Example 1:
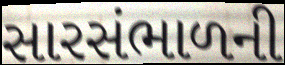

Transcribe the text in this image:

સારસંભાળની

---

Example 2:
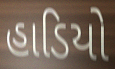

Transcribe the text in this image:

હાડિયો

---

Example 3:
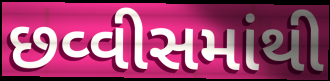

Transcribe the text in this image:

છવ્વીસમાંથી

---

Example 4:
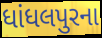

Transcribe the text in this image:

ધાંધલપુરના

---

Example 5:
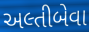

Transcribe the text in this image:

અલ્તીબેવા